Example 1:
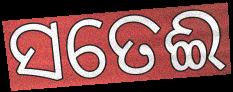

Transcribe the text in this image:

ସତେଈ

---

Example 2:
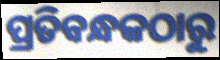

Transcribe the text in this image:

ପ୍ରତିବନ୍ଧକଠାରୁ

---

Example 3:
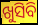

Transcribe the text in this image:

ଖୁସିବି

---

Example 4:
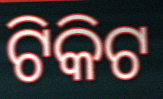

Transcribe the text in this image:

ଟିକିଟ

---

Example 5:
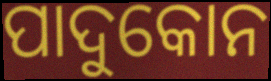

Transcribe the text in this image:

ପାଦୁକୋନ